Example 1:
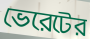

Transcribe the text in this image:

ভেরেটের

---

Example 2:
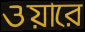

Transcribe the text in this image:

ওয়ারে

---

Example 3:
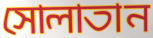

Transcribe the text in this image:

সোলাতান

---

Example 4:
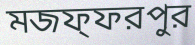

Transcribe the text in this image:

মজফ্ফরপুর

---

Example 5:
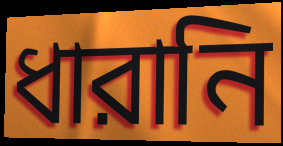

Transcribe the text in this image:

ধারানি